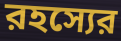
রহস্যের